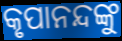
କୃପାନନ୍ଦଙ୍କୁ